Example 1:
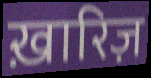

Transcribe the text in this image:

ख़ारिज़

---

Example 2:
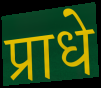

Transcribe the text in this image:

प्राधे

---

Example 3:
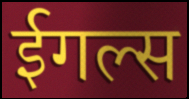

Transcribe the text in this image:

ईगल्स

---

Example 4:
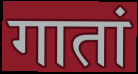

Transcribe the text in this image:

गातां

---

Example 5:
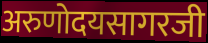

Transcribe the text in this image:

अरुणोदयसागरजी